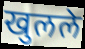
खुलले